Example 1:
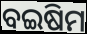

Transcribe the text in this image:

ବଇଷିମ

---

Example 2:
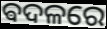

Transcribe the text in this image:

ଵଦଳରେ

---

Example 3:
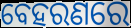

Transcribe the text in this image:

ବେହରଣରେ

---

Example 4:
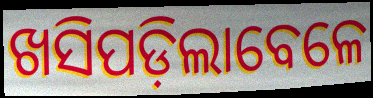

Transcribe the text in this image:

ଖସିପଡ଼ିଲାବେଳେ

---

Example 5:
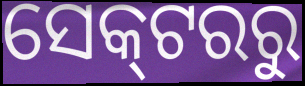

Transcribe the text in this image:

ସେକ୍‌ଟରରୁ